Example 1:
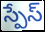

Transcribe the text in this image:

స్పేస్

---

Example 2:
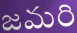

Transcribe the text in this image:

జమరి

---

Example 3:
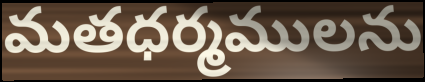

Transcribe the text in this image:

మతధర్మములను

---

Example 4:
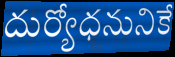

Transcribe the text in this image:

దుర్యోధనునికే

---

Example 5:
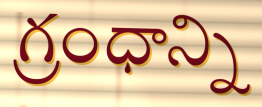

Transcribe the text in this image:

గ్రంధాన్ని